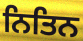
ਨਿਤਿਨ